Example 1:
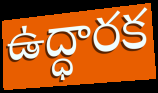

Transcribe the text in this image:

ఉద్ధారక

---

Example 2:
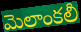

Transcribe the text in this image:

మెలాంకలీ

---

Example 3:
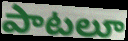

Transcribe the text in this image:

పాటలూ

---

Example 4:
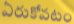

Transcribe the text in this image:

ఏరుకోవటం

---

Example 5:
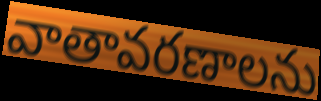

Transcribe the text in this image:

వాతావరణాలను